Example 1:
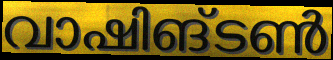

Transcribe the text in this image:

വാഷിങ്ടൺ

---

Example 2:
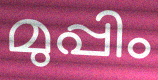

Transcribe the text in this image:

മുപ്പിം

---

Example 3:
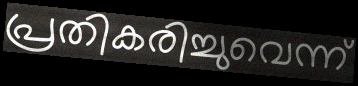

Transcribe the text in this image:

പ്രതികരിച്ചുവെന്ന്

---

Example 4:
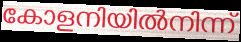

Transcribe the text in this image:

കോളനിയിൽനിന്ന്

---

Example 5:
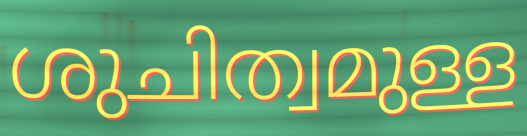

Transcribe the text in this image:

ശുചിത്വമുള്ള